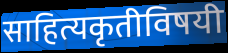
साहित्यकृतीविषयी